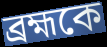
ব্রহ্মকে